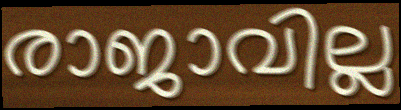
രാജാവില്ല